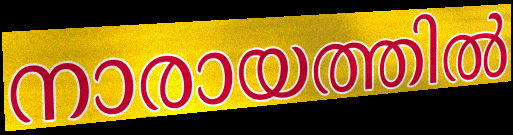
നാരായത്തിൽ